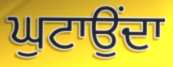
ਘੁਟਾਉਂਦਾ